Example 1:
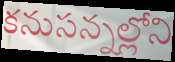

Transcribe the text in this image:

కనుసన్నల్లోని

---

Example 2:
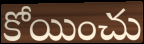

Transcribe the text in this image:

కోయించు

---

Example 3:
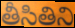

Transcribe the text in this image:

తీసితిని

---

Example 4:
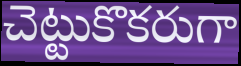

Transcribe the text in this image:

చెట్టుకొకరుగా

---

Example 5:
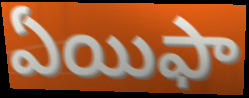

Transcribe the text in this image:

ఏయిఫా